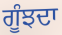
ਗੂੰਝਦਾ